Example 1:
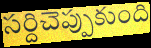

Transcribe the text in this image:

సర్దిచెప్పుకుంది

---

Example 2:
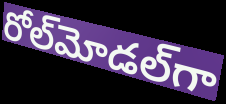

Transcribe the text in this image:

రోల్‌మోడల్‌గా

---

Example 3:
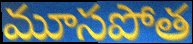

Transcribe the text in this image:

మూసపోత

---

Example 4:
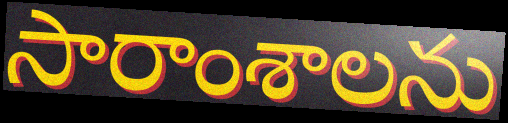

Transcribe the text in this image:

సారాంశాలను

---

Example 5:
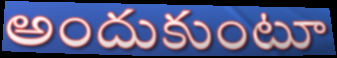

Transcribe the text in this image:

అందుకుంటూ